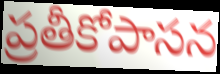
ప్రతీకోపాసన